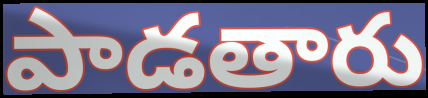
పాడతారు